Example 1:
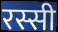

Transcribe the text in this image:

रस्सी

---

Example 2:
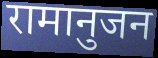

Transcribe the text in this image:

रामानुजन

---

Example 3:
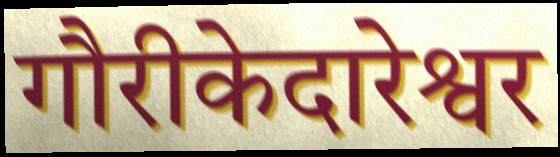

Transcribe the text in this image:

गौरीकेदारेश्वर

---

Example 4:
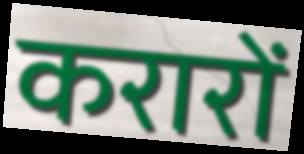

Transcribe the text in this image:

करारों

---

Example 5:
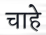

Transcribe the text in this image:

चाहे